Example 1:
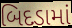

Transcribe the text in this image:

બિદડામાં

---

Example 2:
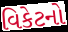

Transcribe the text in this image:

વિકેટનો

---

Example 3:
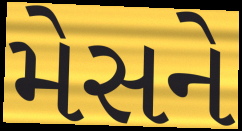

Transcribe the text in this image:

મેસને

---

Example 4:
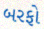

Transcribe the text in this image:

બરફો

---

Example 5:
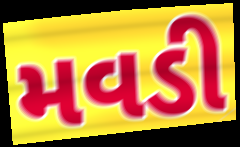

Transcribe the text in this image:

મવડી